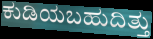
ಕುಡಿಯಬಹುದಿತ್ತು